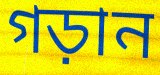
গড়ান